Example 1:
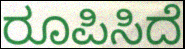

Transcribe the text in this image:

ರೂಪಿಸಿದೆ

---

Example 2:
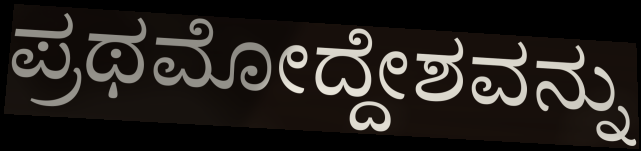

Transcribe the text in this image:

ಪ್ರಥಮೋದ್ದೇಶವನ್ನು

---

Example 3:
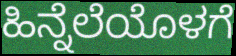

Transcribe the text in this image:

ಹಿನ್ನೆಲೆಯೊಳಗೆ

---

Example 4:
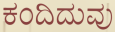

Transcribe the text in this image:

ಕಂದಿದುವು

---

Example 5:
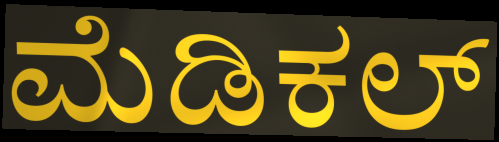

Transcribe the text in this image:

ಮೆಡಿಕಲ್